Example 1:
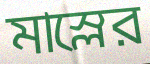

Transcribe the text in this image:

মাস্লের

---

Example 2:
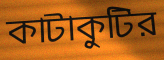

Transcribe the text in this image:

কাটাকুটির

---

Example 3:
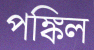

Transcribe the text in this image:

পঙ্কিল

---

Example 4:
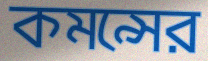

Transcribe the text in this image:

কমন্সের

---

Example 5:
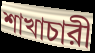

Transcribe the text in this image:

শাখাচারী